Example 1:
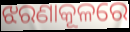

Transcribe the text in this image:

ଝରଣାକୂଳରେ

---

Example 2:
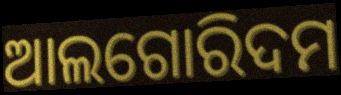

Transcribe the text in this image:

ଆଲଗୋରିଦମ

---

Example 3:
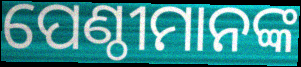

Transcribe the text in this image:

ପେଣ୍ଠୀମାନଙ୍କ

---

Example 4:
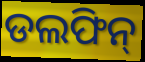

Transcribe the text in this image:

ଡଲଫିନ୍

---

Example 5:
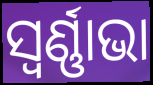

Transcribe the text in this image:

ସ୍ୱର୍ଣ୍ଣାଭା